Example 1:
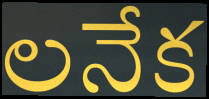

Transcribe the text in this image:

లనేక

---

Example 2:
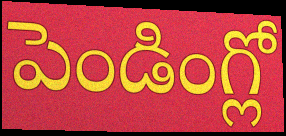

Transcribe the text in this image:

పెండింగ్లో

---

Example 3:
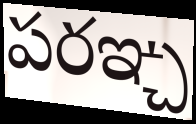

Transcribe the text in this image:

పరఞ్చ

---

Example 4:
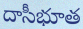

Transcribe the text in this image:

దాసీభూత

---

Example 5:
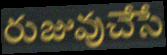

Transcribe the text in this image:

రుజువుచేసే